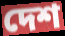
দেশ